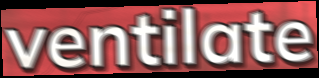
ventilate